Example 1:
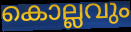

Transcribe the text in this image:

കൊല്ലവും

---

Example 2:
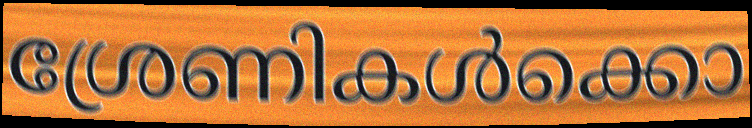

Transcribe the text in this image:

ശ്രേണികൾക്കൊ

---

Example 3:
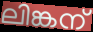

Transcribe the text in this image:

ലിങ്കന്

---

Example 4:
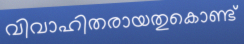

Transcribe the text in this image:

വിവാഹിതരായതുകൊണ്ട്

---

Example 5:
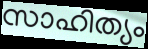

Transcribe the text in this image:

സാഹിത്യം